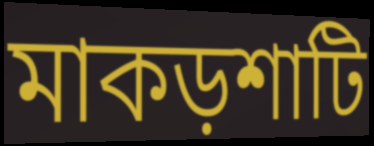
মাকড়শাটি